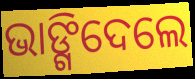
ଭାଙ୍ଗିଦେଲେ